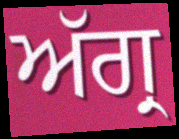
ਅੱਗ੍ਰ